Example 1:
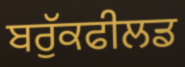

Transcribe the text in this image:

ਬਰੁੱਕਫੀਲਡ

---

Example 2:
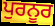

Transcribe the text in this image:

ਪੁਰਨੂਰ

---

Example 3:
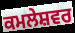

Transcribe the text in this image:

ਕਮਲੇਸ਼ਵਰ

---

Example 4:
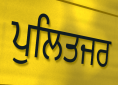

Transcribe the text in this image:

ਪੁਲਿਤਜਰ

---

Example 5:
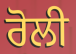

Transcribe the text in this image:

ਰੋਲੀ